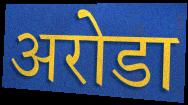
अरोडा